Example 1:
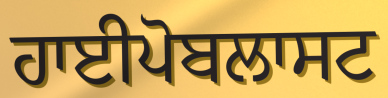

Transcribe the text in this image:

ਹਾਈਪੋਬਲਾਸਟ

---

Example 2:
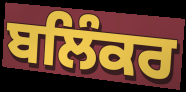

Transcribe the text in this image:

ਬਲਿੰਕਰ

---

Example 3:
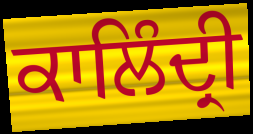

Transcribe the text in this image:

ਕਾਲਿੰਦ੍ਰੀ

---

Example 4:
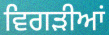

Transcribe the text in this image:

ਵਿਗੜੀਆਂ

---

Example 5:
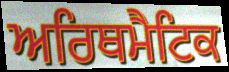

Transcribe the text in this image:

ਅਰਿਥਮੈਟਿਕ